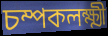
চম্পকলক্ষ্মী